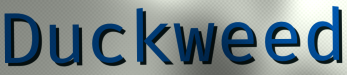
Duckweed